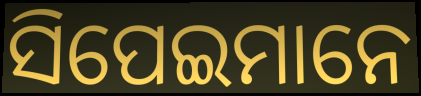
ସିପେଇମାନେ